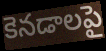
కెనడాలపై